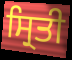
ਸ੍ਰਿਤੀ